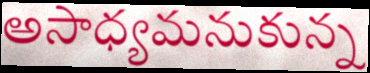
అసాధ్యమనుకున్న